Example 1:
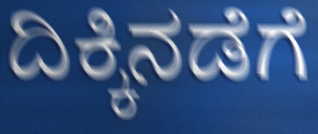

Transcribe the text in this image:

ದಿಕ್ಕಿನಡೆಗೆ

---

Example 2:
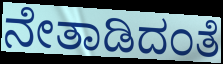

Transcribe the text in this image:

ನೇತಾಡಿದಂತೆ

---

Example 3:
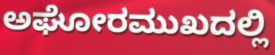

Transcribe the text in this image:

ಅಘೋರಮುಖದಲ್ಲಿ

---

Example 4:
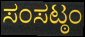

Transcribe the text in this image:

ಸಂಸಟ್ಠಂ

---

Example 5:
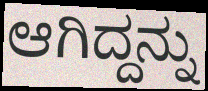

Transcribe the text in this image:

ಆಗಿದ್ದನ್ನು